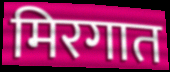
मिरगात